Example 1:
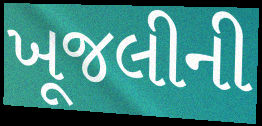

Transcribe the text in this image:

ખૂજલીની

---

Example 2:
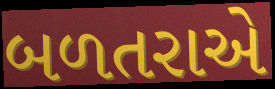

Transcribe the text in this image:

બળતરાએ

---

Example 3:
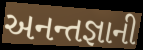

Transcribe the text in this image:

અનન્તજ્ઞાની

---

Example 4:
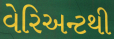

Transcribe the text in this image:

વેરિઅન્ટથી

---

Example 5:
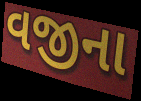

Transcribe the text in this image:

વજીના